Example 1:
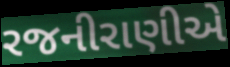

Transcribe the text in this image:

રજનીરાણીએ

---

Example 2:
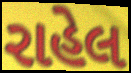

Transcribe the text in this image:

રાહેલ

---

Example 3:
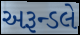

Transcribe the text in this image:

અરૂન્ડલે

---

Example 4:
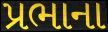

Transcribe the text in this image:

પ્રભાના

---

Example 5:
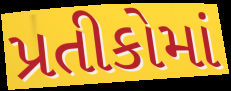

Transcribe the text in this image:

પ્રતીકોમાં